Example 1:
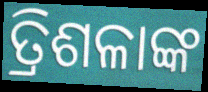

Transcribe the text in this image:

ତ୍ରିଶଳାଙ୍କ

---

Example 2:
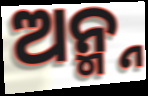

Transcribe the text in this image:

ଅନ୍ମ୍ନ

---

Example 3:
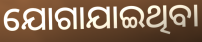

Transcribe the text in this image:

ଯୋଗାଯାଇଥିବା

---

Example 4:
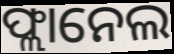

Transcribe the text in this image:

ଫ୍ଲାନେଲ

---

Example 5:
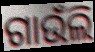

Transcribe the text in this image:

ଗାଉଁଲି